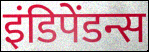
इंडिपेंडन्स